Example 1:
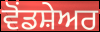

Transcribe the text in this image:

ਵੋਂਡਸ਼ੇਅਰ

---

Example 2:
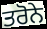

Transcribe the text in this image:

ਤਰੋਨੇ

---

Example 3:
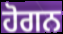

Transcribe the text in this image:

ਹੋਗਨ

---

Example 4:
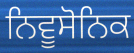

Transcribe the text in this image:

ਨਿਵੂਸੋਨਿਕ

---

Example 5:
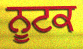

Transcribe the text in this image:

ਨੂਟਕ